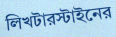
লিখটারস্টাইনের